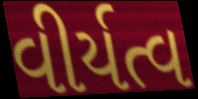
વીર્યત્વ